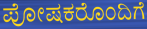
ಪೋಷಕರೊಂದಿಗೆ